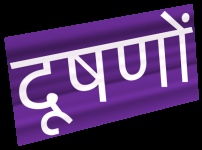
दूषणों